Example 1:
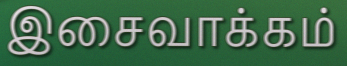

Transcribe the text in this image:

இசைவாக்கம்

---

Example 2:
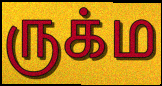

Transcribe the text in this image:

ருக்ம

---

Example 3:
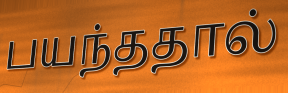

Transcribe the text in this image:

பயந்ததால்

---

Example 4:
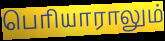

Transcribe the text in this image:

பெரியாராலும்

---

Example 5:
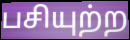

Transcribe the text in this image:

பசியுற்ற